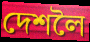
দেশলৈ